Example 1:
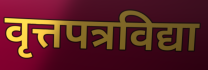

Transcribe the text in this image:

वृत्तपत्रविद्या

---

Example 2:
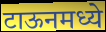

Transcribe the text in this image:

टाऊनमध्ये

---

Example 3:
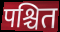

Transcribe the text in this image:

पश्चित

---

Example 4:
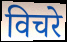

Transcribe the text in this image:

विचरे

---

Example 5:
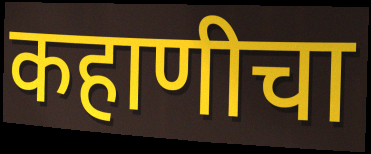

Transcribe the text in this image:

कहाणीचा